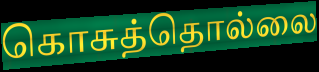
கொசுத்தொல்லை